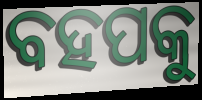
ବହପକୁ